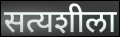
सत्यशीला